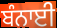
ਬੰਨਾਈ